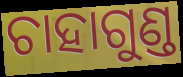
ଚାହାଗୁଣ୍ଡ